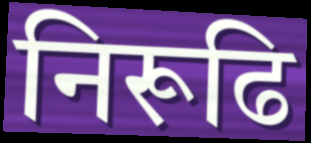
निरूढि